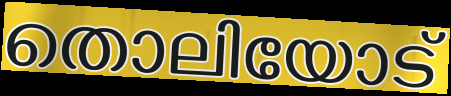
തൊലിയോട്